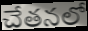
చేతనలో